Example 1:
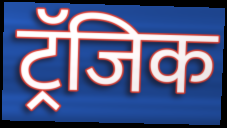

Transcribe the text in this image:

ट्रॅजिक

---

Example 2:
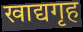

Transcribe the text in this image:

खाद्यगृह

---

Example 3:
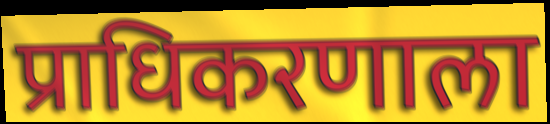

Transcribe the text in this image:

प्राधिकरणाला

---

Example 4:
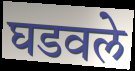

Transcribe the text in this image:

घडवले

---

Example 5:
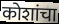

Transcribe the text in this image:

कोशांचा